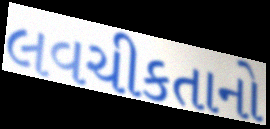
લવચીકતાનો